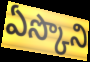
ఏస్కొని